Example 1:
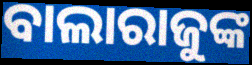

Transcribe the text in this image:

ବାଲାରାଜୁଙ୍କ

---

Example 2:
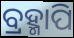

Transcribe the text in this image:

ବ୍ରହ୍ମାପି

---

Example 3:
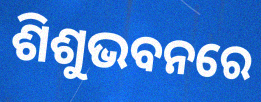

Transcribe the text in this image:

ଶିଶୁଭବନରେ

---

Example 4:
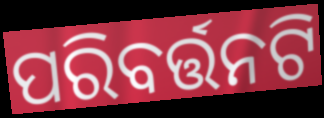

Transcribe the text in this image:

ପରିବର୍ତ୍ତନଟି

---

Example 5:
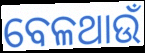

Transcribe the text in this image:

ବେଳଥାଉଁ